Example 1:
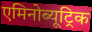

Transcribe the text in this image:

एमिनोब्यूट्रिक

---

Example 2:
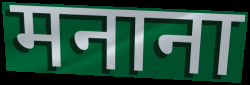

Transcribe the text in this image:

मनाना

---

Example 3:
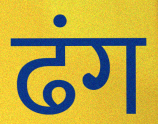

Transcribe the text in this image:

ढंग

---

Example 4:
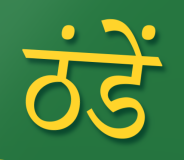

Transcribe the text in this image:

ठंडें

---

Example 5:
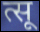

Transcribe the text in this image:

त्सू